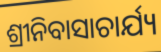
ଶ୍ରୀନିବାସାଚାର୍ଯ୍ୟ